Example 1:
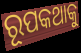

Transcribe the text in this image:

ରୂପକଥାକୁ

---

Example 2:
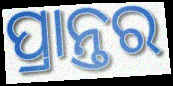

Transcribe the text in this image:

ପ୍ରାନ୍ତର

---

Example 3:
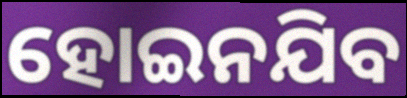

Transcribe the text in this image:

ହୋଇନଯିବ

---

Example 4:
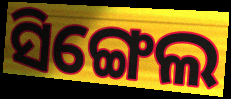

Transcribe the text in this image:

ସିଙ୍ଗେଲ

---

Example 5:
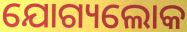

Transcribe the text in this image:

ଯୋଗ୍ୟଲୋକ